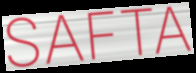
SAFTA